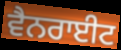
ਵੈਨਰਾਈਟ